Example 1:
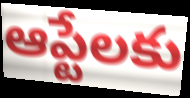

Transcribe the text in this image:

ఆప్టేలకు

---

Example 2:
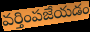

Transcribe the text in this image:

వర్తింపజేయడం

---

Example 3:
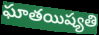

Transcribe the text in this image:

ఘాతయిష్యతి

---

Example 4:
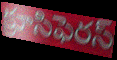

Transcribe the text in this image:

క్రూసిఫెరస్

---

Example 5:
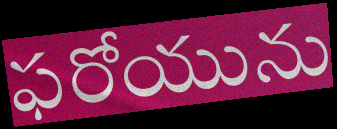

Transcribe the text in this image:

ఫరోయును